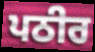
ਪਠੀਰ